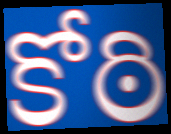
కోఠి